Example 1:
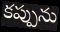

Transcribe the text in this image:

కప్పును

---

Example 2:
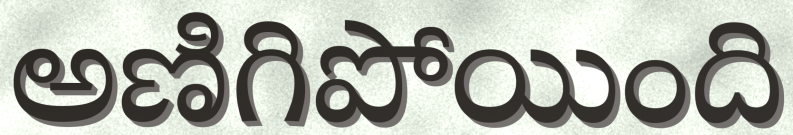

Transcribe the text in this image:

అణిగిపోయింది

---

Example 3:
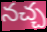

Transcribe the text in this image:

నచ్చ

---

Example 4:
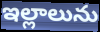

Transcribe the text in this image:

ఇల్లాలును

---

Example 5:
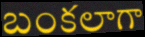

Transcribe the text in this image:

బంకలాగా